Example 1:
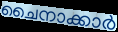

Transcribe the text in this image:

ചൈനാക്കാർ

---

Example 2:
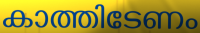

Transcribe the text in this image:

കാത്തിടേണം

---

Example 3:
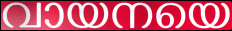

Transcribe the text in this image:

വായനയെ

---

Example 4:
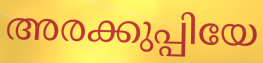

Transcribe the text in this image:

അരക്കുപ്പിയേ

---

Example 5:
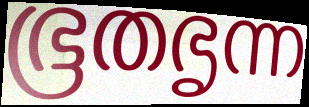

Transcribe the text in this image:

ഭൂതഭൃന്ന